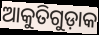
ଆକୁତିଗୁଡ଼ାକ